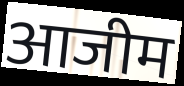
आजीम